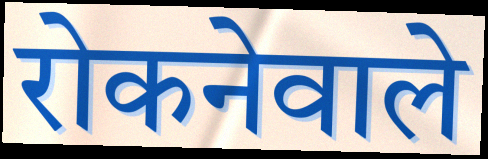
रोकनेवाले